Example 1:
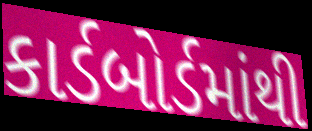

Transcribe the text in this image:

કાર્ડબોર્ડમાંથી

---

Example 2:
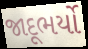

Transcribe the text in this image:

જાદૂભર્યો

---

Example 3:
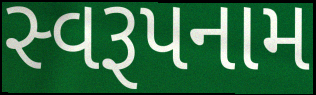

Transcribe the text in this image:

સ્વરૂપનામ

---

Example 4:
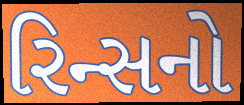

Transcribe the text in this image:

રિન્સનો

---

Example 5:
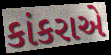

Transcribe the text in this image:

કાંકરાએ